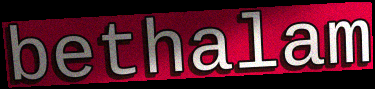
bethalam